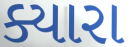
ક્યારા